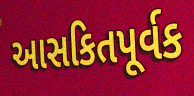
આસકિતપૂર્વક